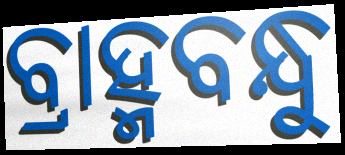
ବ୍ରାହ୍ମବନ୍ଧୁ